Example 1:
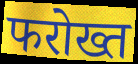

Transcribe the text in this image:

फरोख्त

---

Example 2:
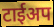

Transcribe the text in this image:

टाईअप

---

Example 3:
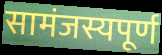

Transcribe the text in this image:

सामंजस्यपूर्ण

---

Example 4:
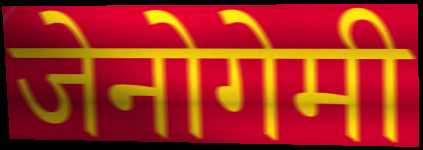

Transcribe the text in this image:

जेनोगेमी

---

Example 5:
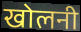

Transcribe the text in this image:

खोलनी